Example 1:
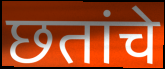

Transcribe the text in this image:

छतांचे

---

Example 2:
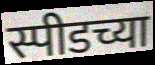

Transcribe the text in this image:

स्पीडच्या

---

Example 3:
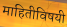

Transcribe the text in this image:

माहितीविषयी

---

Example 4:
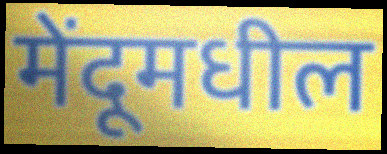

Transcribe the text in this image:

मेंदूमधील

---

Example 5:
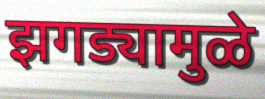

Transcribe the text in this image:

झगड्यामुळे